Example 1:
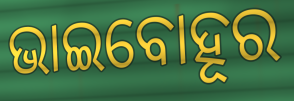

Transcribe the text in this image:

ଭାଇବୋହୂର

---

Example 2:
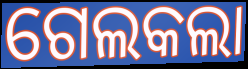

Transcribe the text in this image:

ଗେଲକଲା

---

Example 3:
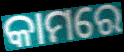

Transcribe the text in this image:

କାମରେ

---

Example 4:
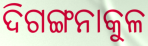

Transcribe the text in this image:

ଦିଗଙ୍ଗନାକୁଳ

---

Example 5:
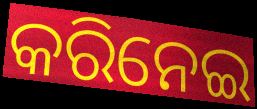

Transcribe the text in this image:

କରିନେଇ